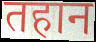
तहान